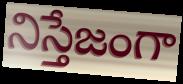
నిస్తేజంగా